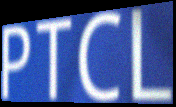
PTCL